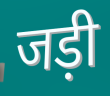
जड़ी